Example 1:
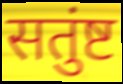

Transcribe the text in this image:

सतुंष्ट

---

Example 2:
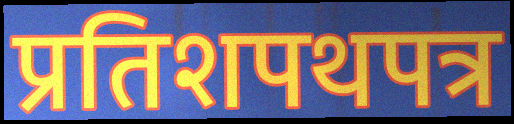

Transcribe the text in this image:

प्रतिशपथपत्र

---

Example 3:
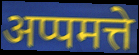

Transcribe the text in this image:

अप्पमत्ते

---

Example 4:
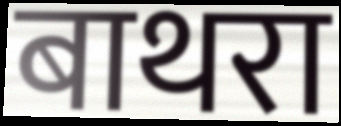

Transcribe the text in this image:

बाथरा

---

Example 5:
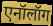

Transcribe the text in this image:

एनॉलॉग